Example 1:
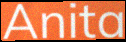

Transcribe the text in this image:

Anita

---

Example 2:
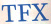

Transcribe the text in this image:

TFX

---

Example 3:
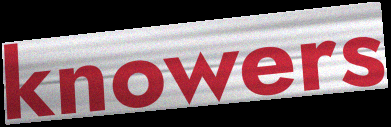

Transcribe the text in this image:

knowers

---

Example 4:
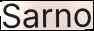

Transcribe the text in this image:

Sarno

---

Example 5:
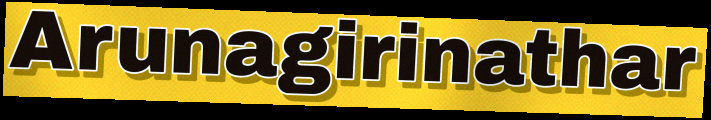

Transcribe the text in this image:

Arunagirinathar